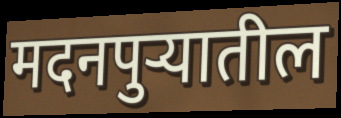
मदनपुऱ्यातील